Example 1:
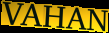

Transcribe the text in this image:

VAHAN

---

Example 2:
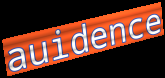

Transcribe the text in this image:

auidence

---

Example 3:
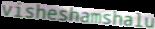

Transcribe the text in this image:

visheshamshalu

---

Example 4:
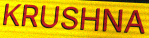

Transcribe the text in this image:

KRUSHNA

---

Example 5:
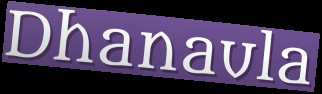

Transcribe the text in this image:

Dhanaula